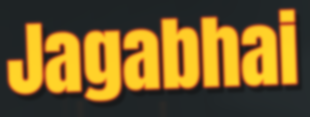
Jagabhai